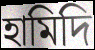
হামিদি